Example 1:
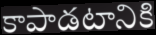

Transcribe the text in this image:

కాపాడటానికి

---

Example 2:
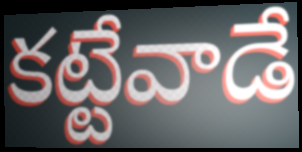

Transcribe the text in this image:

కట్టేవాడే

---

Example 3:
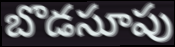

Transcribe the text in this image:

బొడసూపు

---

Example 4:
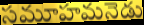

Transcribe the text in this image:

సమూహమనెడు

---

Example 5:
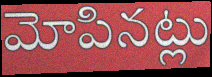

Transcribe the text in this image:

మోపినట్లు